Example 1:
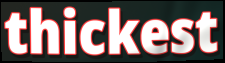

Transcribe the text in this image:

thickest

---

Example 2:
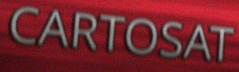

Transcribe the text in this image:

CARTOSAT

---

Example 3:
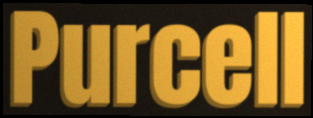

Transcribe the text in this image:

Purcell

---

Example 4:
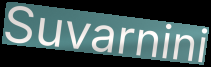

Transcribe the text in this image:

Suvarnini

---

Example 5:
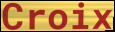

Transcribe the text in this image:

Croix